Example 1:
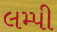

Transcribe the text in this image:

લમ્પી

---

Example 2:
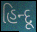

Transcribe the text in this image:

હિન્દૂ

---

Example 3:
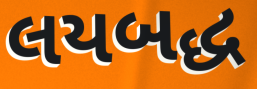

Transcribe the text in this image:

લયબદ્ધ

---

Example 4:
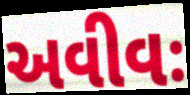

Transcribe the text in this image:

અવીવઃ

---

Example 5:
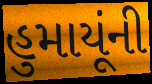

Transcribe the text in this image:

હુમાયૂંની